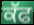
ਕੱਫ